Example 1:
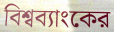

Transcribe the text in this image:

বিশ্বব্যাংকের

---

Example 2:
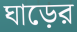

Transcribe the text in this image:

ঘাড়ের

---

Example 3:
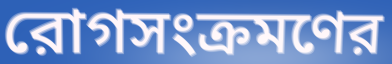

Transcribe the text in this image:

রোগসংক্রমণের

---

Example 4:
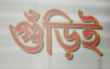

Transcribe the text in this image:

গুঁড়িই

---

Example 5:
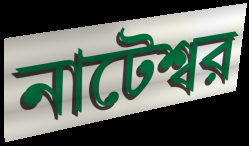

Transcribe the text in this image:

নাটেশ্বর